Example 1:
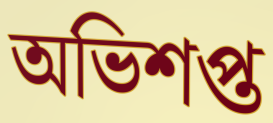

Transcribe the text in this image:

অভিশপ্ত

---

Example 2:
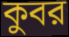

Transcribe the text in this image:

কুবর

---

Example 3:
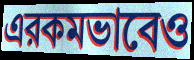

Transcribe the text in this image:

এরকমভাবেও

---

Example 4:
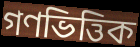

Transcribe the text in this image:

গণভিত্তিক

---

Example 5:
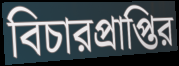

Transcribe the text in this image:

বিচারপ্রাপ্তির